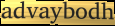
advaybodh